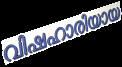
വിഷഹാരിയായ